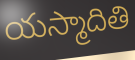
యస్మాదితి